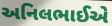
અનિલભાઈએ